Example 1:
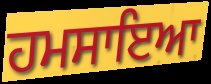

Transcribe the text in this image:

ਹਮਸਾਇਆ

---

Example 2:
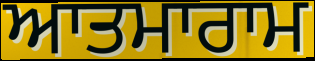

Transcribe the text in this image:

ਆਤਮਾਰਾਮ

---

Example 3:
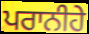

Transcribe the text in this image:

ਪਰਾਨੀਹੇ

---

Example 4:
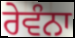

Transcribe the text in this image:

ਰੇਵੰਨਾ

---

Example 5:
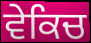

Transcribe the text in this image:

ਵੇਕਿਚ